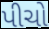
પીચો